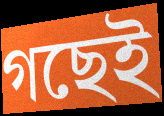
গছেই